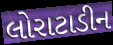
લોરાટાડીન